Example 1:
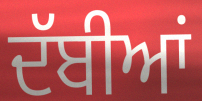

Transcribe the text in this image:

ਦੱਬੀਆਂ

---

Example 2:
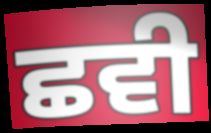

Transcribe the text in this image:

ਛਵੀ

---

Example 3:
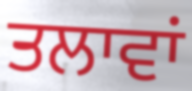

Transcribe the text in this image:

ਤਲਾਵਾਂ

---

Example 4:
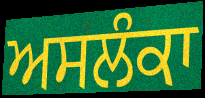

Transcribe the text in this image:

ਅਸਲੰਕਾ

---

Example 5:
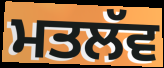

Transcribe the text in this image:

ਮਤਲੱਵ